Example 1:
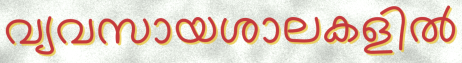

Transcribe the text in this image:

വ്യവസായശാലകളിൽ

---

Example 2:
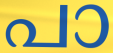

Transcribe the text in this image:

പാ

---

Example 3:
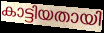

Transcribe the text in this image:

കാട്ടിയതായി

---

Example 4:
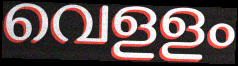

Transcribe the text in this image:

വെളളം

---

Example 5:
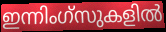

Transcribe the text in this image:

ഇന്നിംഗ്സുകളിൽ